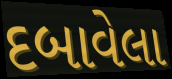
દબાવેલા